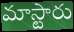
మాస్టారు